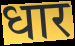
धार